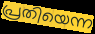
പ്രതിയെന്ന